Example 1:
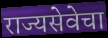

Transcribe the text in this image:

राज्यसेवेचा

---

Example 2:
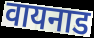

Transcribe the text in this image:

वायनाड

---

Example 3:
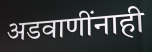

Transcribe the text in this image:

अडवाणींनाही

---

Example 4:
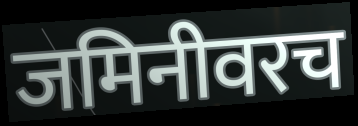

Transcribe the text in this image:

जमिनीवरच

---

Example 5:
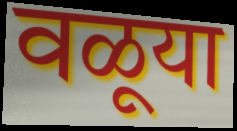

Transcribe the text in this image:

वळूया